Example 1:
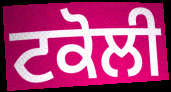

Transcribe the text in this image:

ਟਕੋਲੀ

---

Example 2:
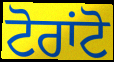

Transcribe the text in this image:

ਟੋਰਾਂਟੋ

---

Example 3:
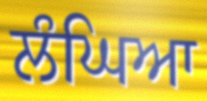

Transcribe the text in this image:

ਲੰਘਿਆ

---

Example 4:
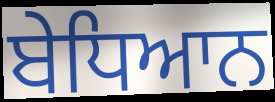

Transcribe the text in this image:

ਬੇਧਿਆਨ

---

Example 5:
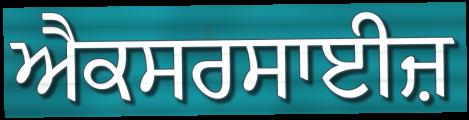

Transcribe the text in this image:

ਐਕਸਰਸਾਈਜ਼